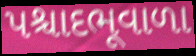
પશ્ચાદભૂવાળા